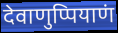
देवाणुप्पियाणं